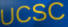
UCSC